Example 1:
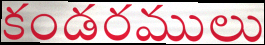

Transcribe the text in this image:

కండరములు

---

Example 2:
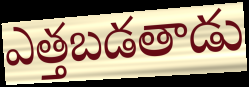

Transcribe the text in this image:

ఎత్తబడతాడు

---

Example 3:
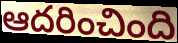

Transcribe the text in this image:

ఆదరించింది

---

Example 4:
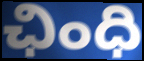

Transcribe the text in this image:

ఛింధి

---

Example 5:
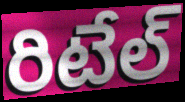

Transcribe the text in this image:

రిటేల్